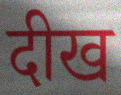
दीख